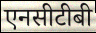
एनसीटीबी